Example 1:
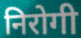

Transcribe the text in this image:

निरोगी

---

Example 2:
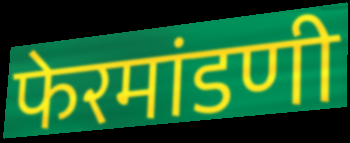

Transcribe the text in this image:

फेरमांडणी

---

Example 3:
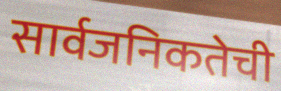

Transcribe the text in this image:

सार्वजनिकतेची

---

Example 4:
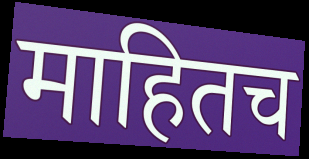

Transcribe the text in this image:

माहितच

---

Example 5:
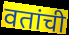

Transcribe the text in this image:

वतांची